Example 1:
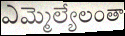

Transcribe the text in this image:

ఎమ్మెల్యేలంతా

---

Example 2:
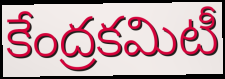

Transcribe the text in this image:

కేంద్రకమిటీ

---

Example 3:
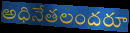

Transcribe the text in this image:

అధినేతలందరూ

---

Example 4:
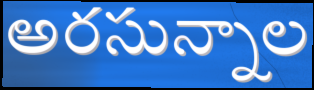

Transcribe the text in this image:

అరసున్నాల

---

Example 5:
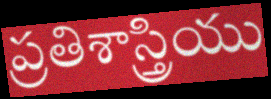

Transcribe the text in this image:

ప్రతిశాస్త్రియు